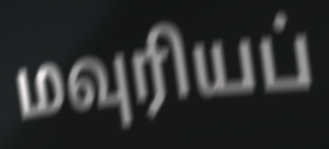
மவுரியப்